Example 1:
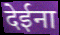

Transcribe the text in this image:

देईना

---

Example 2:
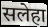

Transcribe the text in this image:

सलेहा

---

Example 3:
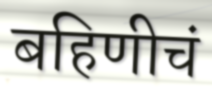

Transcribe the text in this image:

बहिणीचं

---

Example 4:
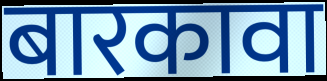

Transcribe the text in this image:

बारकावा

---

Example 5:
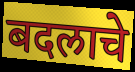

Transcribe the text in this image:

बदलाचे